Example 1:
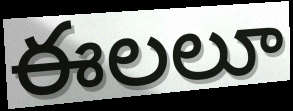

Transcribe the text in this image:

ఈలలూ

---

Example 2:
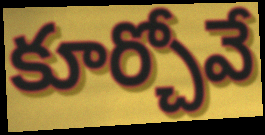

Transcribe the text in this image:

కూర్చోవే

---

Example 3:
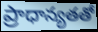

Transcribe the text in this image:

ప్రాధాన్యతతో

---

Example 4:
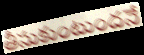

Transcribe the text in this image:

తీసుకుంటుందనే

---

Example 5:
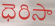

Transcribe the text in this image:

ధెరిసా